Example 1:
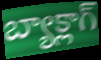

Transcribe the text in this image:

బ్యాక్లాగ్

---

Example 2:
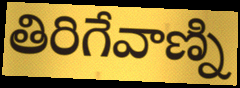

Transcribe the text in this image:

తిరిగేవాణ్ని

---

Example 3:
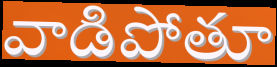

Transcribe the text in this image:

వాడిపోతూ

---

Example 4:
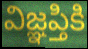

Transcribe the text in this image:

విజ్ఞప్తికి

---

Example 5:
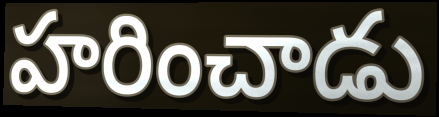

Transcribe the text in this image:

హరించాడు